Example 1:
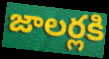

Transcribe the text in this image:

జాలర్లకి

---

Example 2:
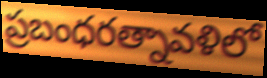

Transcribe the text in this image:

ప్రబంధరత్నావళిలో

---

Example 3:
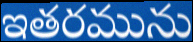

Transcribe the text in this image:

ఇతరమును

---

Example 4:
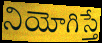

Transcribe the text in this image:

నియోగిస్తే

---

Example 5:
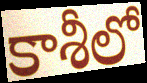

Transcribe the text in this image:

కాశీలో